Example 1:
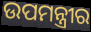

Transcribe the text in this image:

ଉପମନ୍ତ୍ରୀର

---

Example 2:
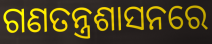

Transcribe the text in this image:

ଗଣତନ୍ତ୍ରଶାସନରେ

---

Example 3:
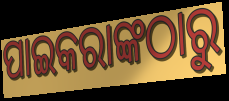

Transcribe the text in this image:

ପାଇକରାଙ୍କଠାରୁ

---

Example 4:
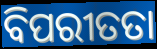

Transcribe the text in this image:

ବିପରୀତତା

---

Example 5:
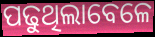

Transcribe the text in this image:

ପଢୁଥିଲାବେଳେ